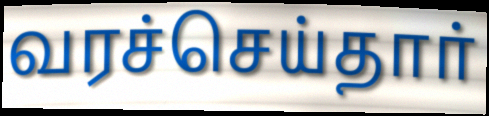
வரச்செய்தார்